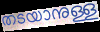
തടയാനുള്ള